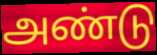
அண்டு